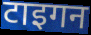
टाइगन